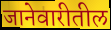
जानेवारीतील